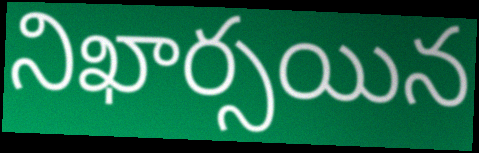
నిఖార్సయిన